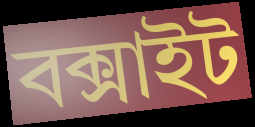
বক্সাইট